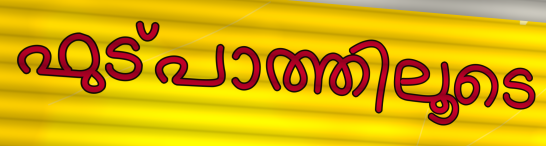
ഫുട്പാത്തിലൂടെ